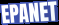
EPANET